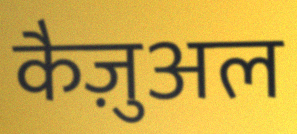
कैज़ुअल